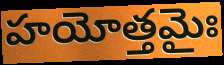
హయోత్తమైః